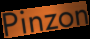
Pinzon